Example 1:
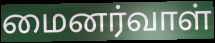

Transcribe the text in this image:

மைனர்வாள்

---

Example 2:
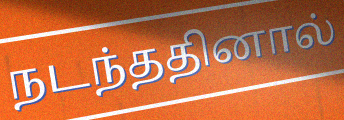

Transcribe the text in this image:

நடந்ததினால்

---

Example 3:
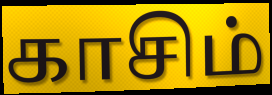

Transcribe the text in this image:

காசிம்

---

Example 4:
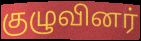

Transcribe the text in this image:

குழுவினர்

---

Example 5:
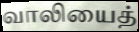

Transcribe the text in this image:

வாலியைத்